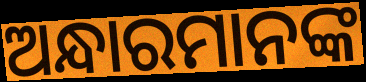
ଅନ୍ଧାରମାନଙ୍କ